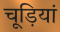
चूड़ियां